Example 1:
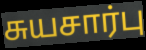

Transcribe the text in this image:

சுயசார்பு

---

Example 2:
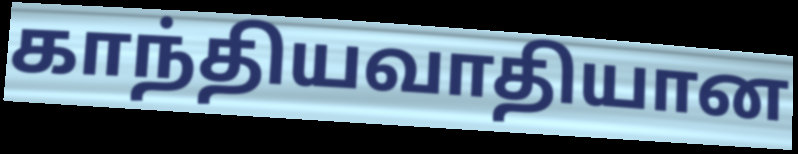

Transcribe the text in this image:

காந்தியவாதியான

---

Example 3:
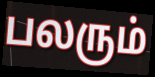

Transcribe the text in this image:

பலரும்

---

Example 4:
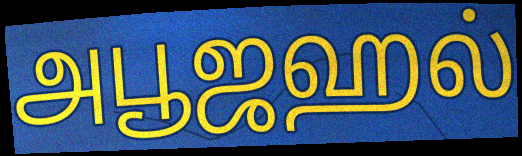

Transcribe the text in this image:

அபூஜஹல்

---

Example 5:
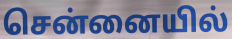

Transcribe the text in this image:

சென்னையில்